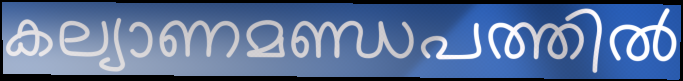
കല്യാണമണ്ഡപത്തിൽ